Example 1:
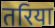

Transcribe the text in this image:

तरिया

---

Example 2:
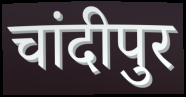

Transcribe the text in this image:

चांदीपुर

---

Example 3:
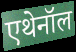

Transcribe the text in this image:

एथेनॉल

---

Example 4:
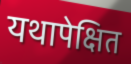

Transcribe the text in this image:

यथापेक्षित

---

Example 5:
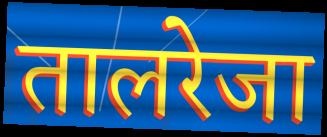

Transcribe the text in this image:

तालरेजा